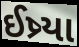
ઈષ્ર્યા